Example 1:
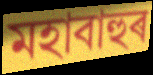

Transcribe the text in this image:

মহাবাহুৰ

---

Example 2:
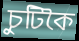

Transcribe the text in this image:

চুটিকৈ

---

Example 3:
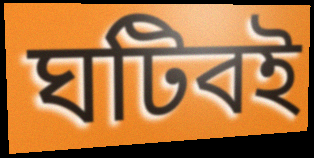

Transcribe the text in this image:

ঘটিবই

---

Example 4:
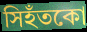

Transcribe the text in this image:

সিহঁতকো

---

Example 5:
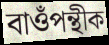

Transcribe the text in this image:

বাওঁপন্থীক